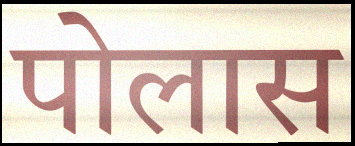
पोलास